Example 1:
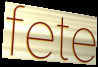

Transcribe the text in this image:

fete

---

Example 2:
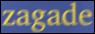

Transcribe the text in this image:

zagade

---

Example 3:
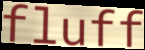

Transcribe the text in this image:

fluff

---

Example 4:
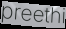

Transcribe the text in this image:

preethi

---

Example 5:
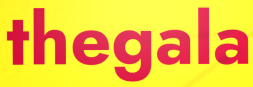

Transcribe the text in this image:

thegala